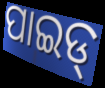
ପାଇଡ୍